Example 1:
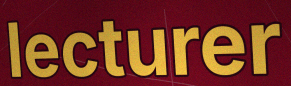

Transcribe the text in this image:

lecturer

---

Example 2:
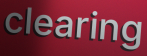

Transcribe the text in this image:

clearing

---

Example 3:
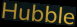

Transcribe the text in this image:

Hubble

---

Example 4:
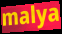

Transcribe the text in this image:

malya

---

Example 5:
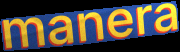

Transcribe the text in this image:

manera